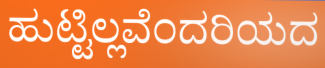
ಹುಟ್ಟಿಲ್ಲವೆಂದರಿಯದ